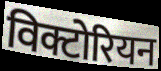
विक्टोरियन